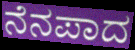
ನೆನಪಾದ